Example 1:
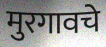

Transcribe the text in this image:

मुरगावचे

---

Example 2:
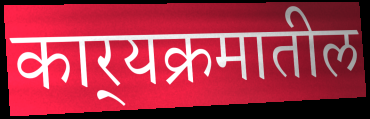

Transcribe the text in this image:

कार्यक्रमातील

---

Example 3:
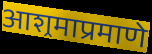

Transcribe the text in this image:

आश्रमाप्रमाणे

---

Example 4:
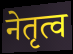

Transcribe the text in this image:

नेतृत्व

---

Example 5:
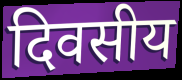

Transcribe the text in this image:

दिवसीय